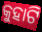
କୁହାଟି